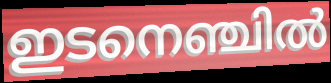
ഇടനെഞ്ചിൽ